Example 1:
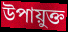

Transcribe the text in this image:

উপায়ুক্ত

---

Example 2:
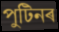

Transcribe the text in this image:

পুটিনৰ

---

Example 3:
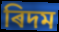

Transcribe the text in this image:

ৰিদম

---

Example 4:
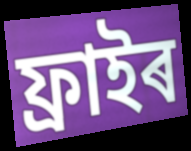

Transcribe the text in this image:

ফ্ৰাইৰ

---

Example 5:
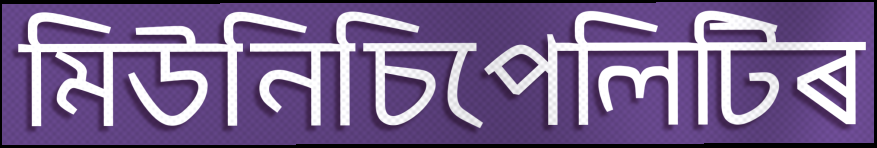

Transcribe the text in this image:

মিউনিচিপেলিটিৰ